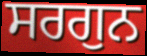
ਸਰਗੁਨ